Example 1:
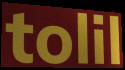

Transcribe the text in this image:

tolil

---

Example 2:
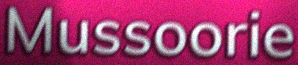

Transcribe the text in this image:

Mussoorie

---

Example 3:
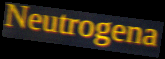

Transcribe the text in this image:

Neutrogena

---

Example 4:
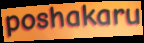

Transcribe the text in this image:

poshakaru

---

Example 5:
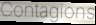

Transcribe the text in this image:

Contagions